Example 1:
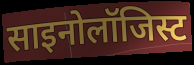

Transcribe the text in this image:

साइनोलॉजिस्ट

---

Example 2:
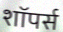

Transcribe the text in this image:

शॉपर्स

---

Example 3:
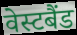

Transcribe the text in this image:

वेस्टबैंड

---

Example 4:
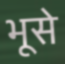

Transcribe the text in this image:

भूसे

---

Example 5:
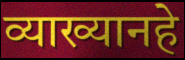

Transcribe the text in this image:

व्याख्यानहे